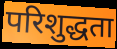
परिशुद्धता